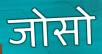
जोसो